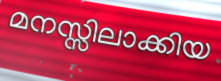
മനസ്സിലാക്കിയ